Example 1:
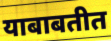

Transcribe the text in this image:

याबाबतीत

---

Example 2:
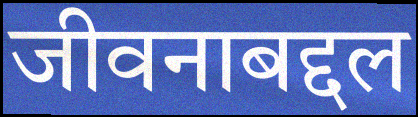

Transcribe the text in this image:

जीवनाबद्दल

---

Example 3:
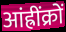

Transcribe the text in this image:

आंह्रींक्रों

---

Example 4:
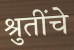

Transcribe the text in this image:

श्रुतींचे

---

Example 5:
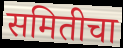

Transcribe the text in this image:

समितीचा